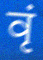
वृं